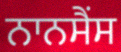
ਨਾਨਸੈਂਸ